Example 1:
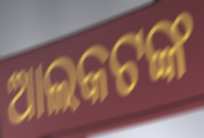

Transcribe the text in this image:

ଆଲକଟଙ୍କ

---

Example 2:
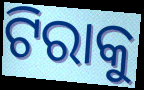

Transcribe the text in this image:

ଟିରାକୁ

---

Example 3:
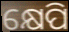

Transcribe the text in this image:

କ୍ଷେପି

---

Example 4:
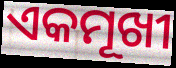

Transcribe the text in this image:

ଏକମୂଖୀ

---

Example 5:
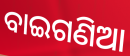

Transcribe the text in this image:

ବାଇଗଣିଆ